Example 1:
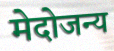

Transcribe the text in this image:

मेदोजन्य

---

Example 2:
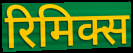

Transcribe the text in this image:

रिमिक्स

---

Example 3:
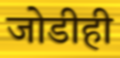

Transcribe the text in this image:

जोडीही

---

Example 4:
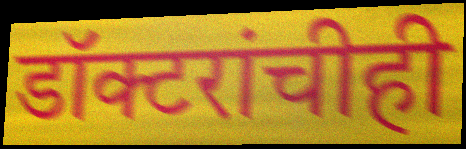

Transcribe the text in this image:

डॉक्टरांचीही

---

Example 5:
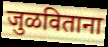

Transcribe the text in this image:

जुळविताना